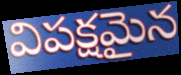
విపక్షమైన